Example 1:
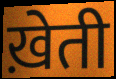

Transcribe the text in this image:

ख़ेती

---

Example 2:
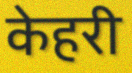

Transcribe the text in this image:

केहरी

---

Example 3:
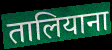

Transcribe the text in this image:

तालियाना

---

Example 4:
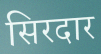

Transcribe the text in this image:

सिरदार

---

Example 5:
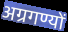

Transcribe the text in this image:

अग्रगण्यों